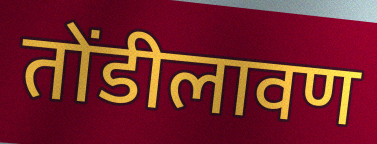
तोंडीलावण